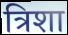
त्रिशा